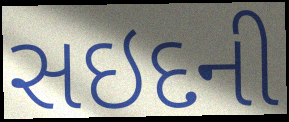
સઇદની